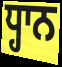
ਧ੍ਹਾਨ